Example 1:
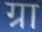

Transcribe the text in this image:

ग्रा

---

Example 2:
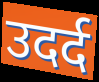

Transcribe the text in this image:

उदर्द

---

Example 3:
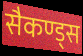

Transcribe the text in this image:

सैकण्ड्स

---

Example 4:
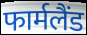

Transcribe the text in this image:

फार्मलैंड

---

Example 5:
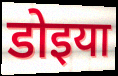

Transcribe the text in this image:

डोइया